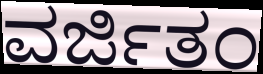
ವರ್ಜಿತಂ